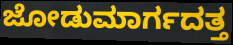
ಜೋಡುಮಾರ್ಗದತ್ತ